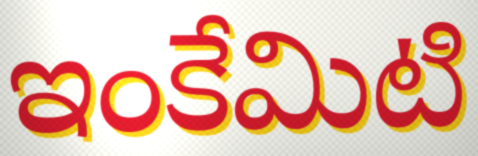
ఇంకేమిటి